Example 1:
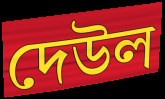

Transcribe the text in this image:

দেউল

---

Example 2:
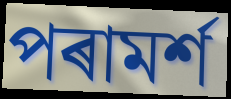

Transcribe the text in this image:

পৰামৰ্শ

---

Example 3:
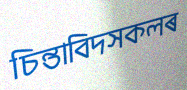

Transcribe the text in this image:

চিন্তাবিদসকলৰ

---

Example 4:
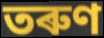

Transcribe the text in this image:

তৰুণ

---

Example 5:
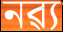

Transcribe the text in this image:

নৱ্য